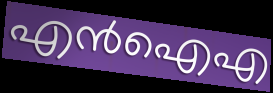
എൻഐഎ